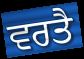
ਵਰਤੈ